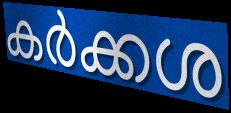
കർക്കശ